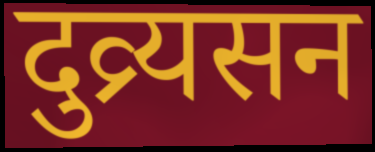
दुव्र्यसन